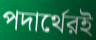
পদার্থেরই